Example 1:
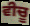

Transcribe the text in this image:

ਵੀਚੂ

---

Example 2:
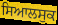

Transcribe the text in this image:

ਸਿਆਲਸੁਕ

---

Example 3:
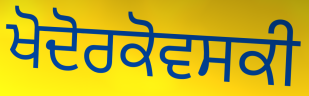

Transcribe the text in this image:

ਖੋਦੋਰਕੋਵਸਕੀ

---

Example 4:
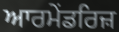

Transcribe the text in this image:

ਆਰਮੇਂਡਰਿਜ਼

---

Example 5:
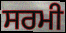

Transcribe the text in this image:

ਸਰਮੀ